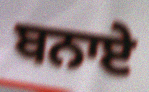
ਬਨਾਏ